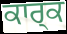
ਕਾਰ੍ਕ